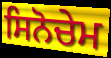
ਸਿਨੋਚੇਮ